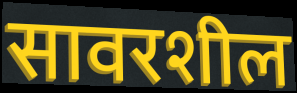
सावरशील